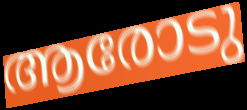
ആരോടു